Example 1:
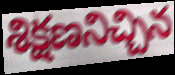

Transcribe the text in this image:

శిక్షణనిచ్చిన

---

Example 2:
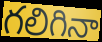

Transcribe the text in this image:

గలిగినా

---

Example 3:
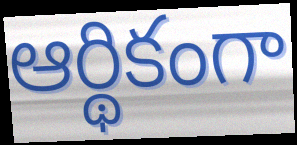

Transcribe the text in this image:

ఆర్థికంగా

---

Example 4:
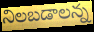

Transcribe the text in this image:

నిలబడాలన్న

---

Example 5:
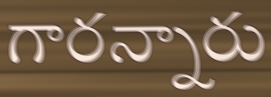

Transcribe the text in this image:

గారన్నారు